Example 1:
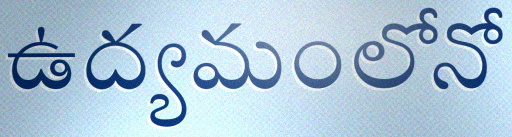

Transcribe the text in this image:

ఉద్యమంలోనో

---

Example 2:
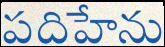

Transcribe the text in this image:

పదిహేను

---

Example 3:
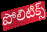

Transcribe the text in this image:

పోలిటిక్స్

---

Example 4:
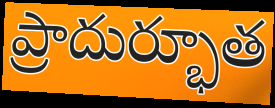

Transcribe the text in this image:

ప్రాదుర్భూత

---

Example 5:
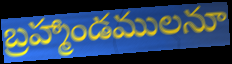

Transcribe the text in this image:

బ్రహ్మాండములనూ